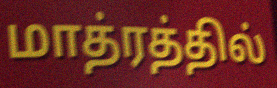
மாத்ரத்தில்